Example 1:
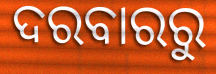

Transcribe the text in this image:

ଦରବାରରୁ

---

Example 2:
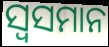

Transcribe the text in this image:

ସ୍ୱସମାନ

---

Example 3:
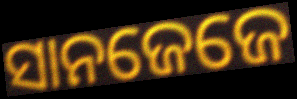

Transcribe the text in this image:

ସାନଜେଜେ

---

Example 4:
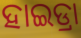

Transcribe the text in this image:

ହାଇଡ୍ରା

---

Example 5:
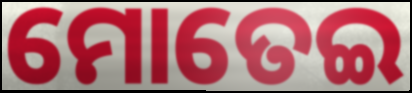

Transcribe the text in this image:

ମୋତେଇ